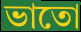
ভাতো